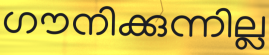
ഗൗനിക്കുന്നില്ല